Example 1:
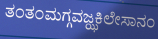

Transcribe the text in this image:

ತಂತಂಮಗ್ಗವಜ್ಝಕಿಲೇಸಾನಂ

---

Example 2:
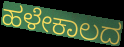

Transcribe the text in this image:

ಹಳೇಕಾಲದ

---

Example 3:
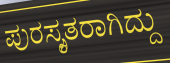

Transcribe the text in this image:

ಪುರಸ್ಕೃತರಾಗಿದ್ದು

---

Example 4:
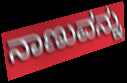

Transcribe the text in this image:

ನಾಣುವನ್ನು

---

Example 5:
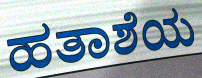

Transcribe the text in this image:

ಹತಾಶೆಯ